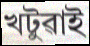
খটুৱাই